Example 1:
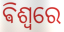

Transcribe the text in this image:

ଵିଶ୍ଵରେ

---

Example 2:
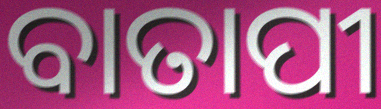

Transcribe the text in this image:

ବାତାପୀ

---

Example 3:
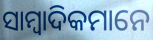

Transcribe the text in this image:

ସାମ୍ବାଦିକମାନେ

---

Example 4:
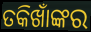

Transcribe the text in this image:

ତକିଖାଁଙ୍କର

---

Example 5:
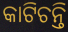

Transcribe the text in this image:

କାଟିଚନ୍ତି